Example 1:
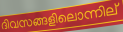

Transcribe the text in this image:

ദിവസങ്ങളിലൊന്നില്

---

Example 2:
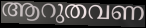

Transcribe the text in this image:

ആറുതവണ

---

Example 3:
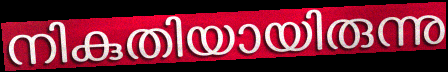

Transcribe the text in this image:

നികുതിയായിരുന്നു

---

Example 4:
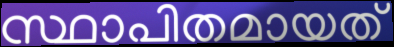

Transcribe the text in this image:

സ്ഥാപിതമായത്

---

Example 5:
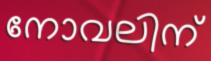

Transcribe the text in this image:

നോവലിന്